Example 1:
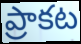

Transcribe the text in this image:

ప్రాకట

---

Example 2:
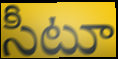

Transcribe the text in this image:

సీటూ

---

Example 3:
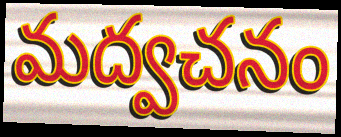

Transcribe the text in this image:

మద్వచనం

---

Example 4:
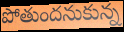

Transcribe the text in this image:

పోతుందనుకున్న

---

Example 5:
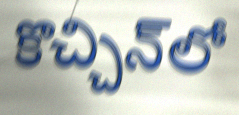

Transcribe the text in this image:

కొచ్చిన్‌లో